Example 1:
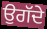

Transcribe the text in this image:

ਉਗੱਦੇ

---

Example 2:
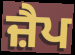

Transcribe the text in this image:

ਜ਼ੈਪ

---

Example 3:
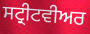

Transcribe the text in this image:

ਸਟ੍ਰੀਟਵੀਅਰ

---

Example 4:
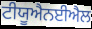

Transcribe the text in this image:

ਟੀਯੂਐਨਈਐਲ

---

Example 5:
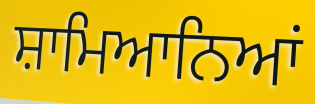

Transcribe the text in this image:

ਸ਼ਾਮਿਆਨਿਆਂ